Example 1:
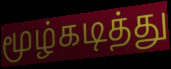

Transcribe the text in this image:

மூழ்கடித்து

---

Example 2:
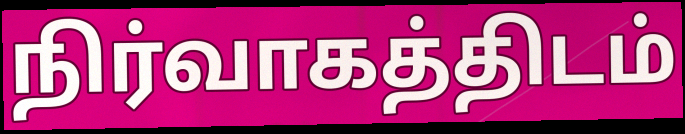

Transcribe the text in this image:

நிர்வாகத்திடம்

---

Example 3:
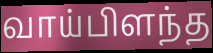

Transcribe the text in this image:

வாய்பிளந்த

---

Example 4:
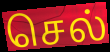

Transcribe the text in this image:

செல்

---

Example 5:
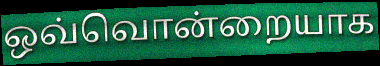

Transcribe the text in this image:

ஒவ்வொன்றையாக